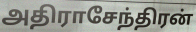
அதிராசேந்திரன்